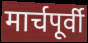
मार्चपूर्वी